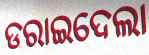
ଡରାଇଦେଲା